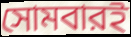
সোমবারই